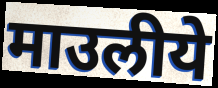
माउलीये